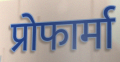
प्रोफार्मा